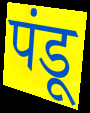
पंडू